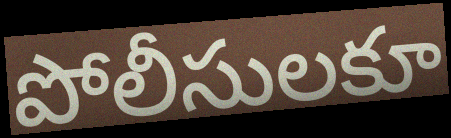
పోలీసులకూ